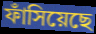
ফাঁসিয়েছে